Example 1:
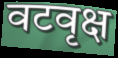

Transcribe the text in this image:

वटवृक्ष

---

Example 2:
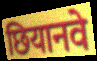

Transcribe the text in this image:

छियानवे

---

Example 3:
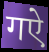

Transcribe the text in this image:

गऐ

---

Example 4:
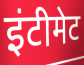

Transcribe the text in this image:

इंटीमेट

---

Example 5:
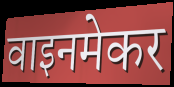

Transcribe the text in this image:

वाइनमेकर